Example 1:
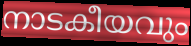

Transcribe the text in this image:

നാടകീയവും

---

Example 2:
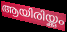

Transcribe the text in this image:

ആയിരിയ്ക്കും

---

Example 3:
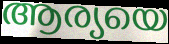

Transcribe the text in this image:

ആര്യയെ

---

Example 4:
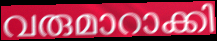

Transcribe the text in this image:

വരുമാറാക്കി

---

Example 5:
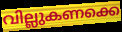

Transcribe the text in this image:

വില്ലുകണക്കെ